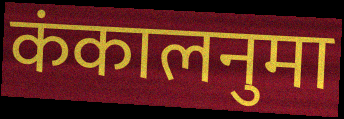
कंकालनुमा